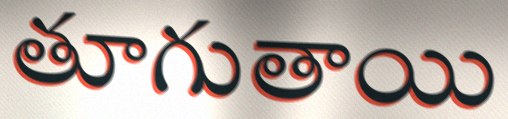
తూగుతాయి